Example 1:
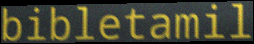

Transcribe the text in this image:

bibletamil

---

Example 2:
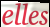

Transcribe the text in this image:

elles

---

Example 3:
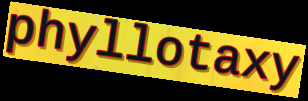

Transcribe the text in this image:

phyllotaxy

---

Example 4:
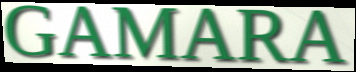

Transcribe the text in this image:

GAMARA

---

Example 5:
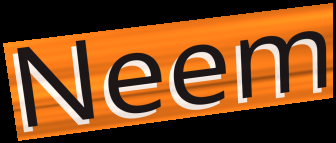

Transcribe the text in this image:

Neem